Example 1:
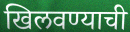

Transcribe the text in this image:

खिलवण्याची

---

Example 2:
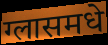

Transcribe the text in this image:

ग्लासमधे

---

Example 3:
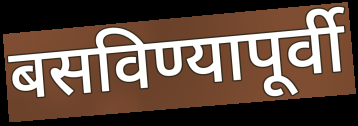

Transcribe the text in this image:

बसविण्यापूर्वी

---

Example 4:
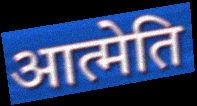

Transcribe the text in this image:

आत्मेति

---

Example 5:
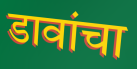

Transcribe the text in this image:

डावांचा